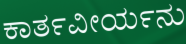
ಕಾರ್ತವೀರ್ಯನು